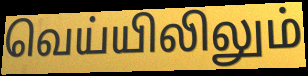
வெய்யிலிலும்